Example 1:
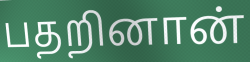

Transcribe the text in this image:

பதறினான்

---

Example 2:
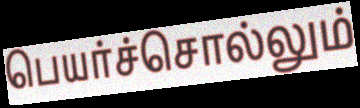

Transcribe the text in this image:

பெயர்ச்சொல்லும்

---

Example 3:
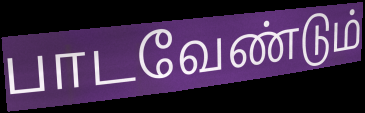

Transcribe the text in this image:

பாடவேண்டும்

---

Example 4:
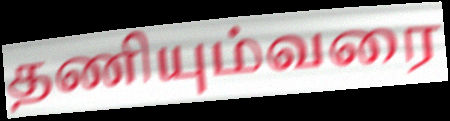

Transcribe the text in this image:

தணியும்வரை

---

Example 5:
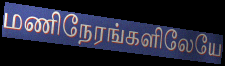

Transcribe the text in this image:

மணிநேரங்களிலேயே